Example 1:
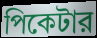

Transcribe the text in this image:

পিকেটার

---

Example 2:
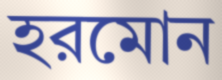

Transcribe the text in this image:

হরমোন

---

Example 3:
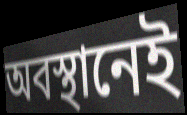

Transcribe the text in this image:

অবস্থানেই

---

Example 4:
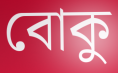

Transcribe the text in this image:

বোকু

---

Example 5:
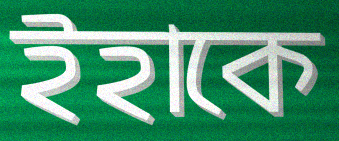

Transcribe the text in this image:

ইহাকে